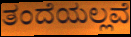
ತಂದೆಯಲ್ಲವೆ